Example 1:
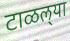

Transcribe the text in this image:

टाळल्या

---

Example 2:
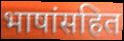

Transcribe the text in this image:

भाषांसहित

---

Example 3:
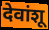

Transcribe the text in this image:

देवांशू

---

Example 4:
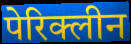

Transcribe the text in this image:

पेरिक्लीन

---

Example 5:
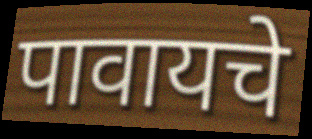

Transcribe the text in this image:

पावायचे